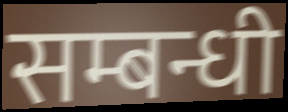
सम्‍बन्‍धी